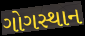
ગોગસ્થાન